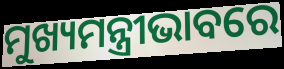
ମୁଖ୍ୟମନ୍ତ୍ରୀଭାବରେ